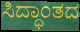
ಸಿದ್ಧಾಂತದ